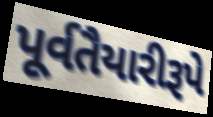
પૂર્વતૈયારીરૂપે